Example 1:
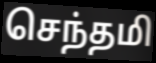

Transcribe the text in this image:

செந்தமி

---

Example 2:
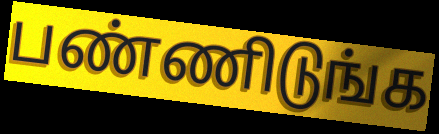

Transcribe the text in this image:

பண்ணிடுங்க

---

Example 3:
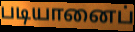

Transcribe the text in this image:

படியானைப்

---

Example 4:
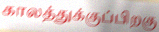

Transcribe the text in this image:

காலத்துக்குப்பிறகு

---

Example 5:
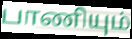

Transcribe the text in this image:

பாணியும்